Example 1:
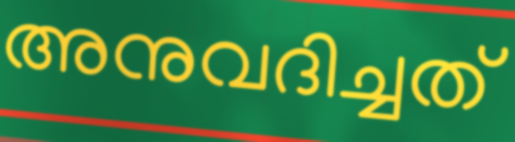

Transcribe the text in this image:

അനുവദിച്ചത്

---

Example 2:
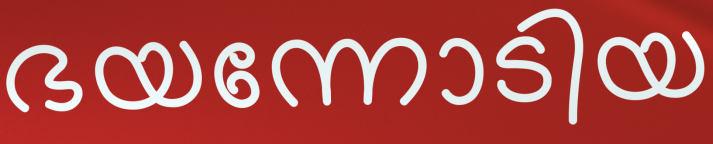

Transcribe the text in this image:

ഭയന്നോടിയ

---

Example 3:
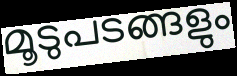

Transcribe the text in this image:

മൂടുപടങ്ങളും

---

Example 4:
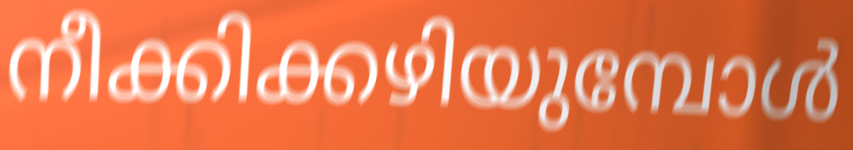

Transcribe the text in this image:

നീക്കിക്കഴിയുമ്പോൾ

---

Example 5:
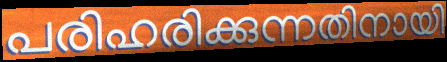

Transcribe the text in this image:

പരിഹരിക്കുന്നതിനായി